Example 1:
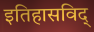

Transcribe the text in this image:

इतिहासविद्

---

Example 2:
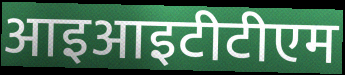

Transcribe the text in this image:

आइआइटीटीएम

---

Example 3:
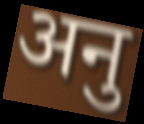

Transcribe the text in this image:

अनु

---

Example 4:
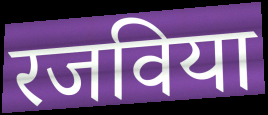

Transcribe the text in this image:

रजविया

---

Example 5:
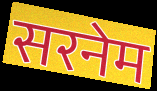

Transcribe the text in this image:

सरनेम